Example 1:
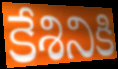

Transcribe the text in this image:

కేశినికి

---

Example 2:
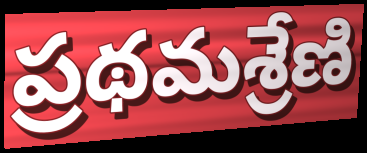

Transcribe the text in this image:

ప్రథమశ్రేణి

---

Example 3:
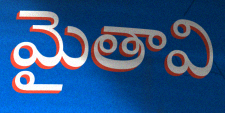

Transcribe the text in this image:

మైతావి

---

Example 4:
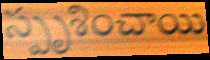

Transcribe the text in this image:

స్పృశించాయి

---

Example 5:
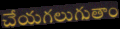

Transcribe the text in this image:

చేయగలుగుతాం